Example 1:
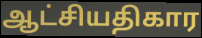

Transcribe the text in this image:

ஆட்சியதிகார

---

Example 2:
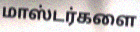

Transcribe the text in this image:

மாஸ்டர்களை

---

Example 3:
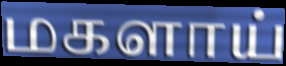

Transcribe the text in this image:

மகளாய்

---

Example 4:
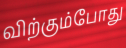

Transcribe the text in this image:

விற்கும்போது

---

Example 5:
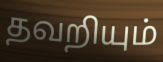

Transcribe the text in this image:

தவறியும்